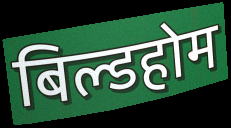
बिल्डहोम